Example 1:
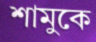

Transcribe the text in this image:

শামুকে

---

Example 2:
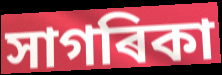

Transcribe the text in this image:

সাগৰিকা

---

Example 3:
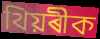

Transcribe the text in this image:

থিয়ৰীক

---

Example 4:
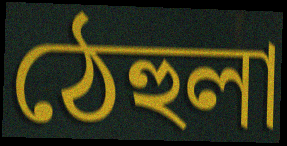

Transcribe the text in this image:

ঠেহুলা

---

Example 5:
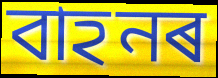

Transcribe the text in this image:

বাহনৰ